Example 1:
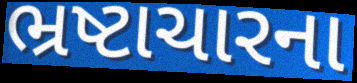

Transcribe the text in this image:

ભ્રષ્ટાચારના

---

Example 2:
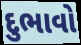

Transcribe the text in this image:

દુભાવો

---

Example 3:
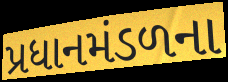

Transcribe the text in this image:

પ્રધાનમંડળના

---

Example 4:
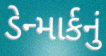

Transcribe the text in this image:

ડેન્માર્કનું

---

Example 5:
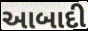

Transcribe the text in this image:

આબાદી